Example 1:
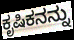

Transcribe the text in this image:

ಕೃಷಿಕನನ್ನು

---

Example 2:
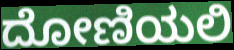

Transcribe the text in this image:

ದೋಣಿಯಲಿ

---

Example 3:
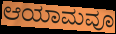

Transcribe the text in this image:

ಆಯಾಮವೂ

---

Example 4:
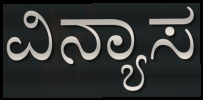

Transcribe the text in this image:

ವಿನ್ಯಾಸ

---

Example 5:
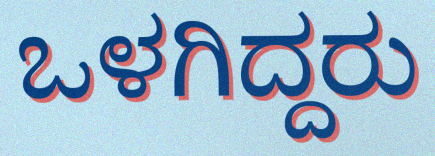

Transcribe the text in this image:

ಒಳಗಿದ್ದರು